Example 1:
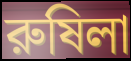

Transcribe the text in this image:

রুষিলা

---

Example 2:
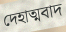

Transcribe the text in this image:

দেহাত্মবাদ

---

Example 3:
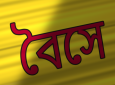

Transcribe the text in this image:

বৈসে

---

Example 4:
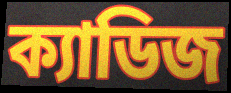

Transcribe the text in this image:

ক্যাডিজ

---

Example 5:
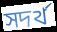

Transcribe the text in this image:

সদর্থ